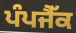
ਪੰਪਜੈੱਕ